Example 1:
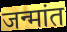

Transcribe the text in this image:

जन्मांत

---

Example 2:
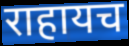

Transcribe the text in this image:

राहायच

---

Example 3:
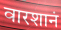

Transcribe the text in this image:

वारशानं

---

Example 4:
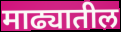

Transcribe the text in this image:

माढ्यातील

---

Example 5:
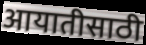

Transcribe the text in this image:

आयातीसाठी